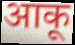
आकू